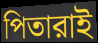
পিতারাই